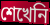
শেখেনি